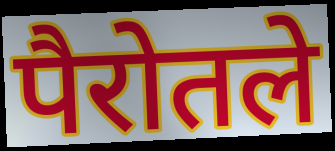
पैरोतले